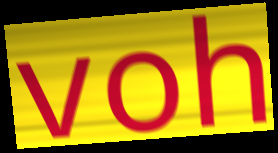
voh